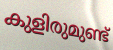
കുളിരുമുണ്ട്